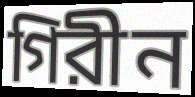
গিরীন